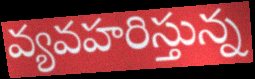
వ్యవహరిస్తున్న